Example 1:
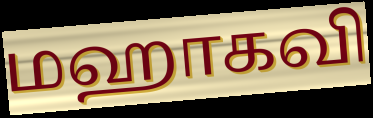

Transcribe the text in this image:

மஹாகவி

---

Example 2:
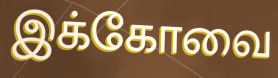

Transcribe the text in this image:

இக்கோவை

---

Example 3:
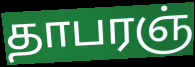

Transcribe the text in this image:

தாபரஞ்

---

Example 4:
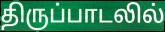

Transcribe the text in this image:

திருப்பாடலில்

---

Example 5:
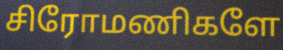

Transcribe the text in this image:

சிரோமணிகளே